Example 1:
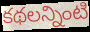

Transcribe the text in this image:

కథలన్నింటి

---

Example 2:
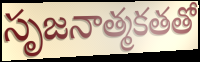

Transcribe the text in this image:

సృజనాత్మకతతో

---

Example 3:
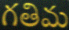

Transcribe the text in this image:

గతిమ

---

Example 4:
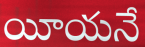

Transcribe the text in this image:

యీయనే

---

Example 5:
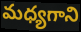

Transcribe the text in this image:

మధ్యగాని